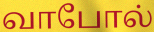
வாபோல்